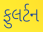
ફુલર્ટન